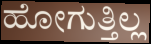
ಹೋಗುತ್ತಿಲ್ಲ